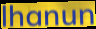
lhanun